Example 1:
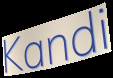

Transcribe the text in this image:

Kandi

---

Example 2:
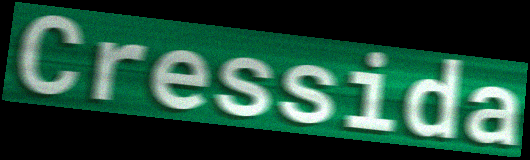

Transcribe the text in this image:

Cressida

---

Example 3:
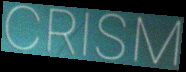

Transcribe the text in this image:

CRISM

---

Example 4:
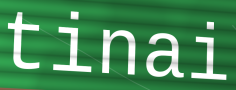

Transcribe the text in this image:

tinai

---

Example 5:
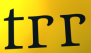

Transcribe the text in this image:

trr